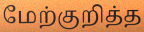
மேற்குறித்த